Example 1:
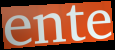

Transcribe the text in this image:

ente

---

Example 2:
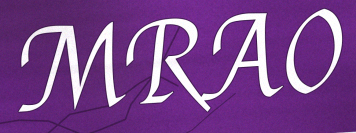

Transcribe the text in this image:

MRAO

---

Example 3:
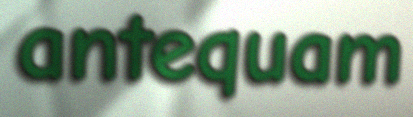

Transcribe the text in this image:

antequam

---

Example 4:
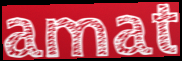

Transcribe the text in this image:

amat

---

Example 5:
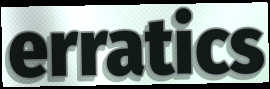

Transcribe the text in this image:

erratics